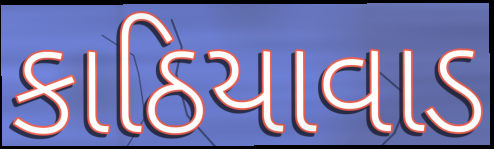
કાઠિયાવાડ